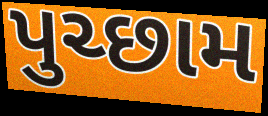
પુચ્છામ